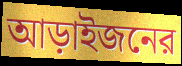
আড়াইজনের